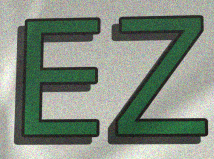
EZ